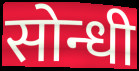
सोन्धी